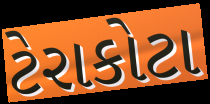
ટેરાકોટા